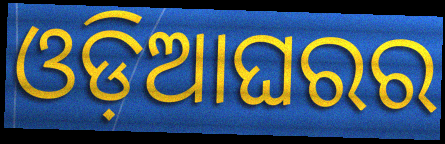
ଓଡ଼ିଆଘରର